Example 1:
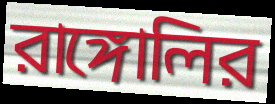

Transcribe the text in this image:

রাঙ্গোলির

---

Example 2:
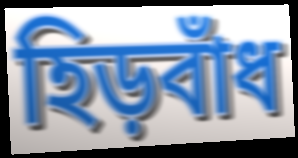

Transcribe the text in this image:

হিড়বাঁধ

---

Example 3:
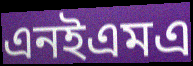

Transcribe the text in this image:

এনইএমএ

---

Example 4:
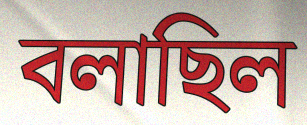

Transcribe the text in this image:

বলাছিল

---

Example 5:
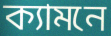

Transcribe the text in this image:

ক্যামনে